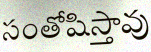
సంతోషిస్తావు